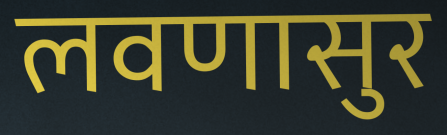
लवणासुर